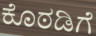
ಕೊಠಡಿಗೆ